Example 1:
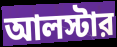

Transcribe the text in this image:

আলস্টার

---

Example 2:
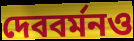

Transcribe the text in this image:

দেববর্মনও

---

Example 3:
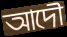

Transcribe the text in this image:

আদৌ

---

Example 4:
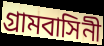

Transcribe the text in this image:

গ্রামবাসিনী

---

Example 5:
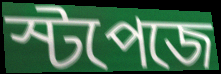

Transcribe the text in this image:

স্টপেজে